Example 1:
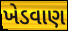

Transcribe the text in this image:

ખેડવાણ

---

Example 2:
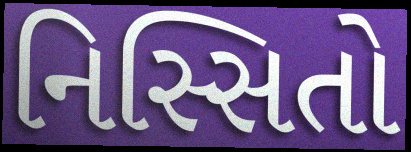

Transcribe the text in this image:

નિસ્સિતો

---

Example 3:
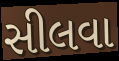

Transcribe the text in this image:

સીલવા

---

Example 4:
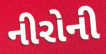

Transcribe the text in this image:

નીરોની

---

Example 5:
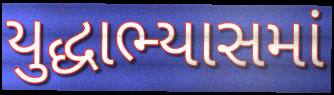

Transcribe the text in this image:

યુદ્ધાભ્યાસમાં